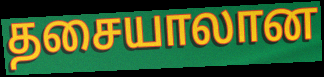
தசையாலான